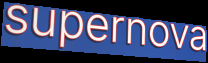
supernova